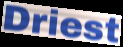
Driest